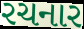
રચનાર